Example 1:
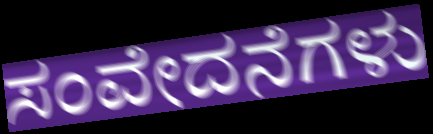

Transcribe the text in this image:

ಸಂವೇದನೆಗಳು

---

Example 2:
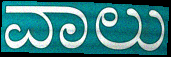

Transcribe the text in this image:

ವಾಲು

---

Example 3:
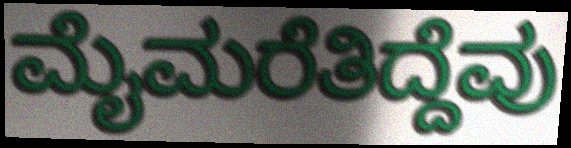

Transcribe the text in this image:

ಮೈಮರೆತಿದ್ದೆವು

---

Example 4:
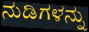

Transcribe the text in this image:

ನುಡಿಗಳನ್ನು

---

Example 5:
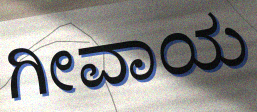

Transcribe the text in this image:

ಗೀವಾಯ